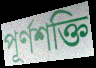
পূর্ণশক্তি